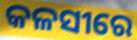
କଳସୀରେ